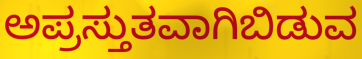
ಅಪ್ರಸ್ತುತವಾಗಿಬಿಡುವ